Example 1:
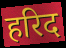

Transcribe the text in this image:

हरिद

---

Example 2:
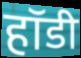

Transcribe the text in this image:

हॉडी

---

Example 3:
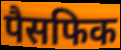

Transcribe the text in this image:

पैसफिक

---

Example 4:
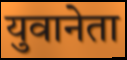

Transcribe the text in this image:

युवानेता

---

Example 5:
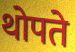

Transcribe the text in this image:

थोपते